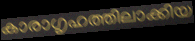
കാരാഗൃഹത്തിലാക്കിയ